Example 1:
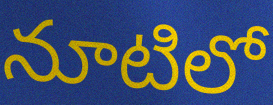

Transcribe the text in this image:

నూటిలో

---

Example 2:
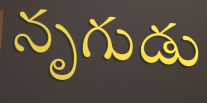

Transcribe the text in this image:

నృగుడు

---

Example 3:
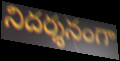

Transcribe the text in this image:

నిదర్శనంగా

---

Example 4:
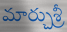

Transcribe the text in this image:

మార్చుశ్రీ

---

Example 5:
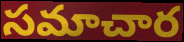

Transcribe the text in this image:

సమాచార